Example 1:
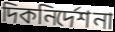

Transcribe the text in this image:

দিকনির্দেশনা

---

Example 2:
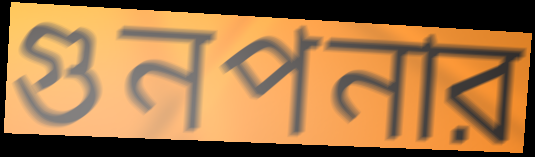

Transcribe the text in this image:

গুনপনার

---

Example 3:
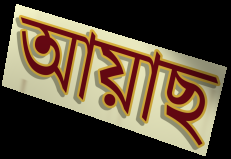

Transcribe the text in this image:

আয়াছ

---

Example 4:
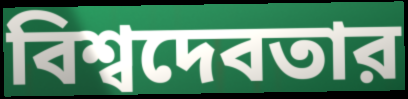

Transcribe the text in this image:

বিশ্বদেবতার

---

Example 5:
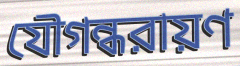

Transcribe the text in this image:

যৌগন্ধরায়ণ